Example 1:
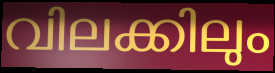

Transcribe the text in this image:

വിലക്കിലും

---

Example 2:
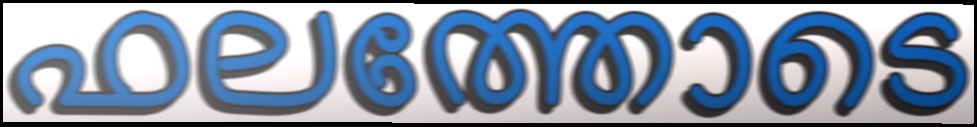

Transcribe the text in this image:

ഫലത്തോടെ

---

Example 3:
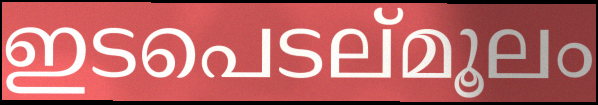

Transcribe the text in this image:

ഇടപെടല്മൂലം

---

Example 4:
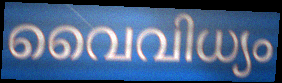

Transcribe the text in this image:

വൈവിധ്യം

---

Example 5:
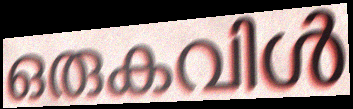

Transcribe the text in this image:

ഒരുകവിൾ